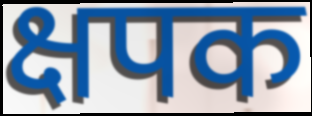
क्षपक